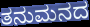
ತನುಮನದ